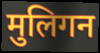
मुलिगन